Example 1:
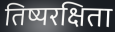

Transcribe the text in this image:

तिष्यरक्षिता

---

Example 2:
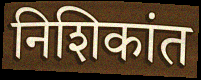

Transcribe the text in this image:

निशिकांत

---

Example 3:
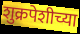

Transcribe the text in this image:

शुक्रपेशीच्या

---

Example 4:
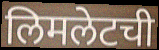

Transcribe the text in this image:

लिमलेटची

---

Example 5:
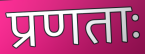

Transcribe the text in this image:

प्रणताः